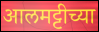
आलमट्टीच्या